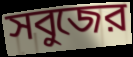
সবুজের